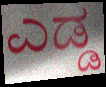
ಎಡ್ಡ